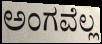
ಅಂಗವೆಲ್ಲ